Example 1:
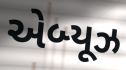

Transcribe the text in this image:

એબ્યૂઝ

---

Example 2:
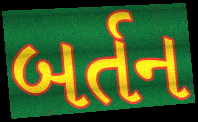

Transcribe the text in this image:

બર્તન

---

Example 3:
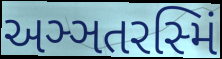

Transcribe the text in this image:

અઞ્ઞતરસ્મિં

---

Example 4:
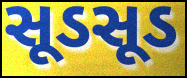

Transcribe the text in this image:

સૂડસૂડ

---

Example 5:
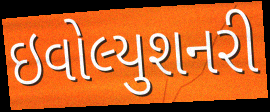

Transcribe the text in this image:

ઇવોલ્યુશનરી